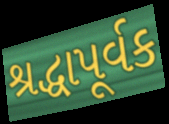
શ્રદ્ધાપૂર્વક